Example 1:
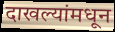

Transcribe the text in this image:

दाखल्यांमधून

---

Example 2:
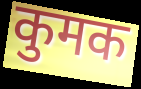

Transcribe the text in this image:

कुमक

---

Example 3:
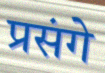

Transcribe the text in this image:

प्रसंगे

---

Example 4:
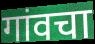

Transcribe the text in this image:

गांवचा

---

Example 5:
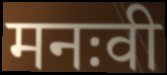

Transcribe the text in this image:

मनःवी